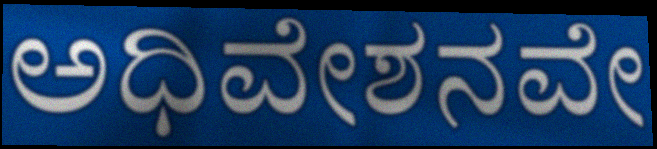
ಅಧಿವೇಶನವೇ